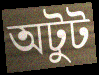
অটুট